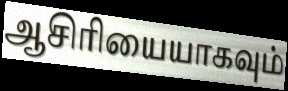
ஆசிரியையாகவும்